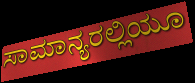
ಸಾಮಾನ್ಯರಲ್ಲಿಯೂ